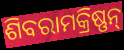
ଶିବରାମକ୍ରିଷ୍ଣନ୍